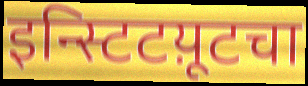
इन्स्टिटय़ूटचा